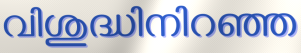
വിശുദ്ധിനിറഞ്ഞ